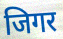
जिगर